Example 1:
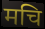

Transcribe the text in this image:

मचि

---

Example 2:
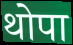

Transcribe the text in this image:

थोपा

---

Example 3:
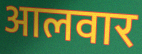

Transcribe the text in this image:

आलवार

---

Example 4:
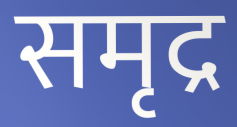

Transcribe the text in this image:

समृद्र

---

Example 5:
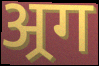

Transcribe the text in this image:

अ्रग